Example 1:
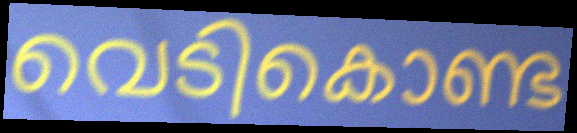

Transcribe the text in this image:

വെടികൊണ്ട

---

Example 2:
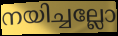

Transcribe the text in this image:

നയിച്ചല്ലോ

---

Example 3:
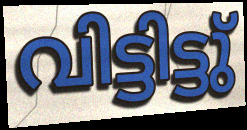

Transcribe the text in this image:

വിട്ടിട്ടു്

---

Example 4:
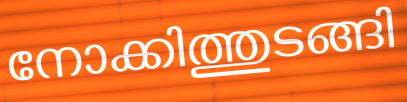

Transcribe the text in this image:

നോക്കിത്തുടങ്ങി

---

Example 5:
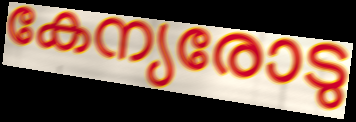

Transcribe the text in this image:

കേന്യരോടു